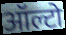
ऑल्टो